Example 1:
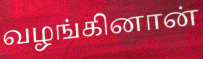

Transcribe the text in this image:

வழங்கினான்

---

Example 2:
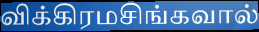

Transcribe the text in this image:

விக்கிரமசிங்கவால்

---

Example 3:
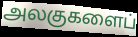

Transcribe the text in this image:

அலகுகளைப்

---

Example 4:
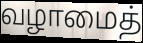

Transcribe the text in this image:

வழாமைத்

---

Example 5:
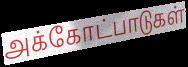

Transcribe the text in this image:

அக்கோட்பாடுகள்